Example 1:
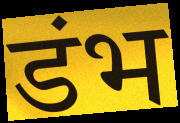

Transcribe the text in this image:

डंभ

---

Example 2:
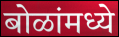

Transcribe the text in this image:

बोळांमध्ये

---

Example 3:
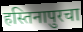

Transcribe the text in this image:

हस्तिनापुरचा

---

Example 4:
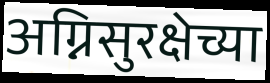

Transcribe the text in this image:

अग्निसुरक्षेच्या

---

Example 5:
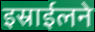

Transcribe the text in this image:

इस्राईलने